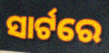
ସାର୍ଟରେ